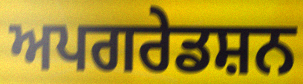
ਅਪਗਰੇਡਸ਼ਨ